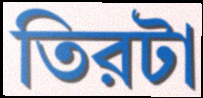
তিরটা